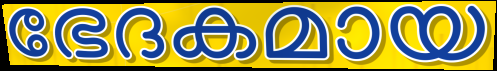
ഭേദകമായ